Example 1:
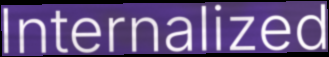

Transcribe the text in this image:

Internalized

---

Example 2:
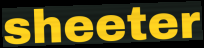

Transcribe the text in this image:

sheeter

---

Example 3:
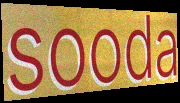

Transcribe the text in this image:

sooda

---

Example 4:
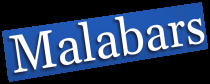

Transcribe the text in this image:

Malabars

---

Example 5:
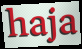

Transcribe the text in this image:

haja